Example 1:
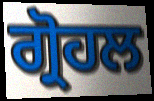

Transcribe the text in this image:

ਗ੍ਰੋਹਲ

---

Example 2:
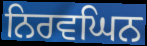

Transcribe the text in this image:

ਨਿਰਵਘਿਨ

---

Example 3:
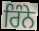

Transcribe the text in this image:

ਰਿੰਨੇ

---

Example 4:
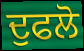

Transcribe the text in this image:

ਦੁਫਲੋ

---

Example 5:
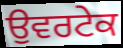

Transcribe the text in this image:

ਉਵਰਟੇਕ